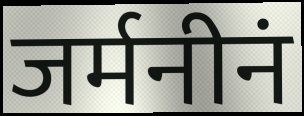
जर्मनीनं